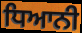
ਧਿਆਨੀ